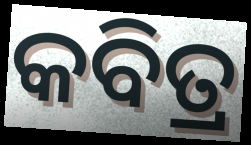
କବିତ୍ର